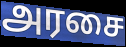
அரசை